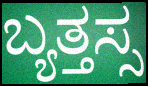
ಬ್ಯತ್ತಸ್ಸ